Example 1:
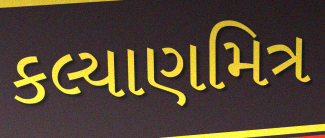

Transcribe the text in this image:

કલ્યાણમિત્ર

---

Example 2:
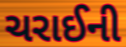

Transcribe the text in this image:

ચરાઈની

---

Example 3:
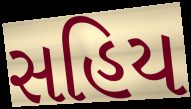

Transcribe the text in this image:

સહિય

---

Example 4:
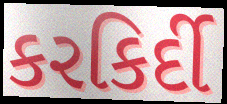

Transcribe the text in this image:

કરકિર્દી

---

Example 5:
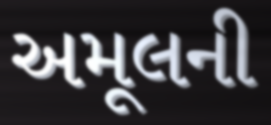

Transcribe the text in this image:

અમૂલની